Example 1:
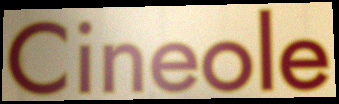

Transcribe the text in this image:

Cineole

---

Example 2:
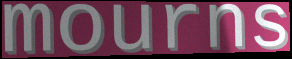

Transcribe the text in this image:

mourns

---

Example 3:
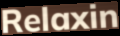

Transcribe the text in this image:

Relaxin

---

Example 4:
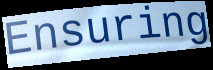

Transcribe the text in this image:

Ensuring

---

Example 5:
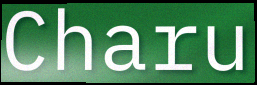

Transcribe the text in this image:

Charu